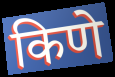
किणे